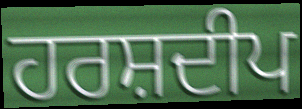
ਹਰਸ਼ਦੀਪ